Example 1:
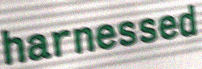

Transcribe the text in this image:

harnessed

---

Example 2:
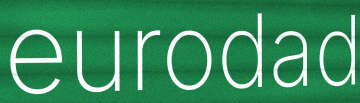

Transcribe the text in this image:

eurodad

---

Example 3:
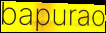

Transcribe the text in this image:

bapurao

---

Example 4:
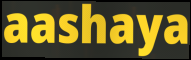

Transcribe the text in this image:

aashaya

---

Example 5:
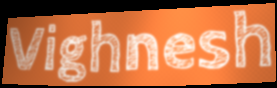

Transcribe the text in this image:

Vighnesh